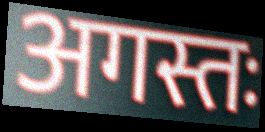
अगस्तः